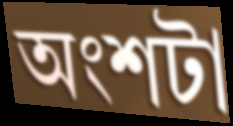
অংশটা